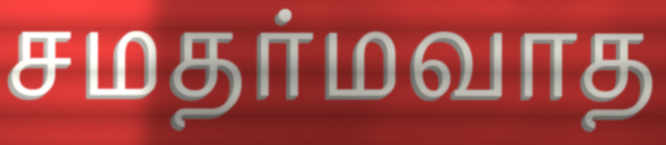
சமதர்மவாத